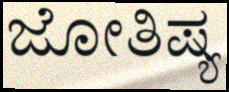
ಜೋತಿಷ್ಯ